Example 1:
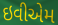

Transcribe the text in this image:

ઇવીએમ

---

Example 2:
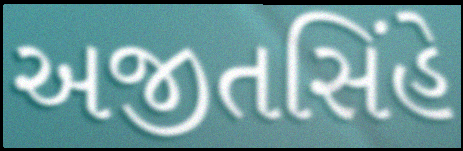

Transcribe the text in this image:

અજીતસિંહે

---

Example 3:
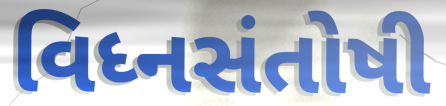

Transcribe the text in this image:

વિધ્નસંતોષી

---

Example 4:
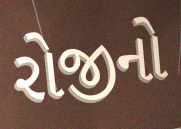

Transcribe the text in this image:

રોજીનો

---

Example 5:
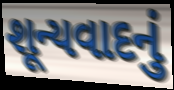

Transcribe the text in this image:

શૂન્યવાદનું